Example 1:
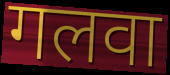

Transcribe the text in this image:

गलवा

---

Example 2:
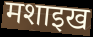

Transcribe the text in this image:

मशाइख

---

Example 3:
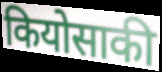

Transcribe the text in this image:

कियोसाकी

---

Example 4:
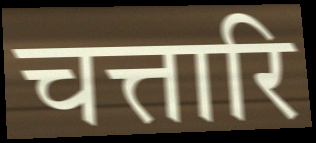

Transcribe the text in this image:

चत्तारि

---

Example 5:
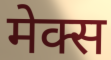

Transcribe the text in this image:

मेक्स